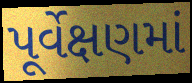
પૂર્વેક્ષણમાં